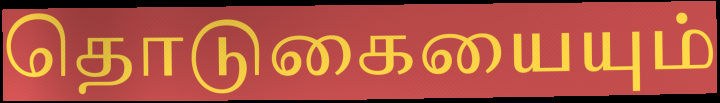
தொடுகையையும்